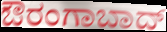
ಔರಂಗಾಬಾದ್